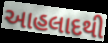
આહલાદથી